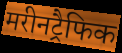
मरीनट्रैफिक